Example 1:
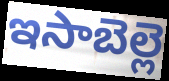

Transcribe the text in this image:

ఇసాబెల్లె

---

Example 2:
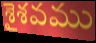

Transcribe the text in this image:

శైశవము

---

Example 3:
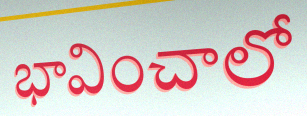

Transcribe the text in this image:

భావించాలో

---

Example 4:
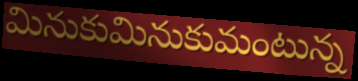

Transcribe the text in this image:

మినుకుమినుకుమంటున్న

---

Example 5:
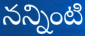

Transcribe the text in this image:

నన్నింటి